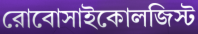
রোবোসাইকোলজিস্ট